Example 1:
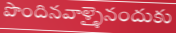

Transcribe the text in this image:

పొందినవాళ్ళైనందుకు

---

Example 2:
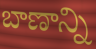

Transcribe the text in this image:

బాణాన్ని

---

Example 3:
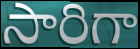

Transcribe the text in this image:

సారిగా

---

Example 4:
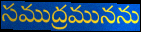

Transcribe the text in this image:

సముద్రమునను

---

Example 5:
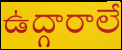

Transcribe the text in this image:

ఉద్గారాలే